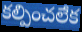
కల్పించలేక